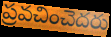
ప్రవచించెదరు